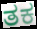
ತಕ